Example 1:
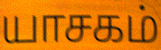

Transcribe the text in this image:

யாசகம்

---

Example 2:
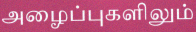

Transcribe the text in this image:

அழைப்புகளிலும்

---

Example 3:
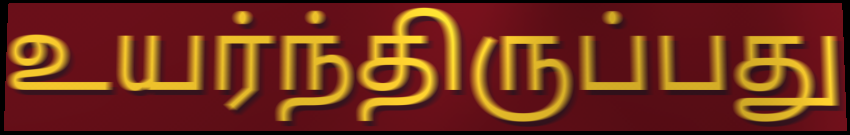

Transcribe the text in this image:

உயர்ந்திருப்பது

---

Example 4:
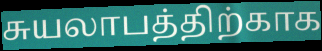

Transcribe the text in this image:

சுயலாபத்திற்காக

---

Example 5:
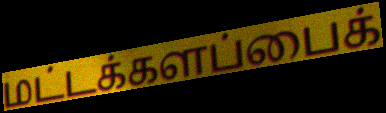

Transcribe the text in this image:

மட்டக்களப்பைக்